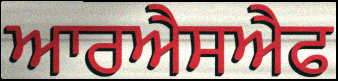
ਆਰਐਸਐਫ